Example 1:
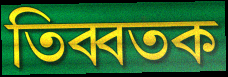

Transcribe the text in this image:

তিব্বতক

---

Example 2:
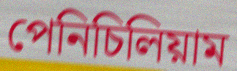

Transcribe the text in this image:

পেনিচিলিয়াম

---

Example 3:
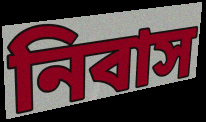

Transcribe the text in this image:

নিবাস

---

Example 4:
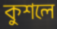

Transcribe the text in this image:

কুশলে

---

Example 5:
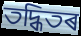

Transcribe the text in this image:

তদ্ধিতৰ